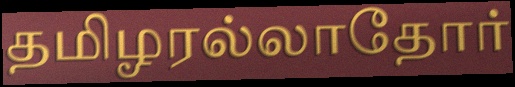
தமிழரல்லாதோர்